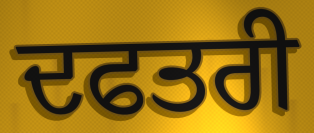
ਦਫਤਰੀ